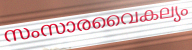
സംസാരവൈകല്യം